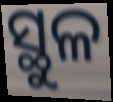
ସ୍ଥୁଳ